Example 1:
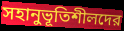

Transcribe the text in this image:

সহানুভূতিশীলদের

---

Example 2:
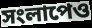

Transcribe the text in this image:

সংলাপেও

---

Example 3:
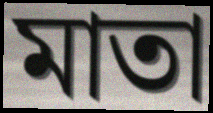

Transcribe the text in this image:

মাতা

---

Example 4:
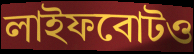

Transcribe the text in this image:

লাইফবোটও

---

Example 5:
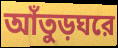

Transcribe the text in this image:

আঁতুড়ঘরে